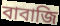
বাবাজি